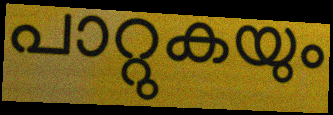
പാറ്റുകയും